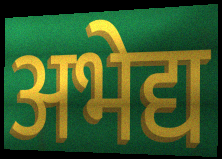
अभेद्य